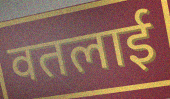
वतलाई